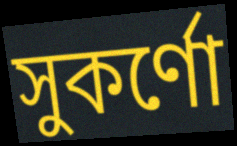
সুকৰ্ণো